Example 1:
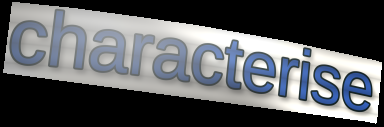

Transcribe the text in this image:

characterise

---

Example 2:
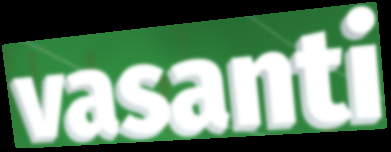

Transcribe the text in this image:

vasanti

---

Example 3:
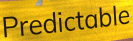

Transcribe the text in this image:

Predictable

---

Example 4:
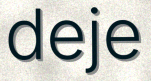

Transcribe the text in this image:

deje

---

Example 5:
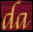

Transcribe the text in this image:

da